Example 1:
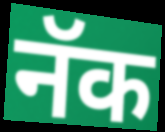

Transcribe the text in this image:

नॅक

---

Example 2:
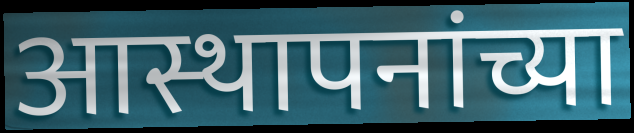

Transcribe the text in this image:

आस्थापनांच्या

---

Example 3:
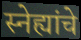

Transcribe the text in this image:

स्नेह्यांचे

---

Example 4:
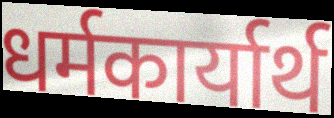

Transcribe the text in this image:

धर्मकार्यार्थ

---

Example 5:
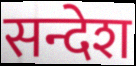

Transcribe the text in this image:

सन्देश